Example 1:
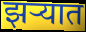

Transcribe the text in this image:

झर्‍यात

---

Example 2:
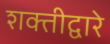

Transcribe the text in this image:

शक्तीद्वारे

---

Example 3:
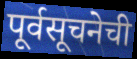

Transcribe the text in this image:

पूर्वसूचनेची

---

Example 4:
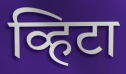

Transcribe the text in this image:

व्हिटा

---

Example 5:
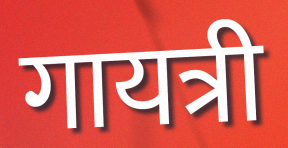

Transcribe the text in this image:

गायत्री